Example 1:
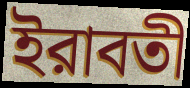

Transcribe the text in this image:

ইরাবতী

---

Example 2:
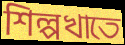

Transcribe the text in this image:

শিল্পখাতে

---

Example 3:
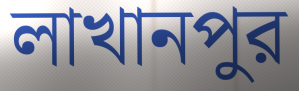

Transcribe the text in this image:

লাখানপুর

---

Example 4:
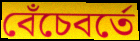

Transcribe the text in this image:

বেঁচেবর্তে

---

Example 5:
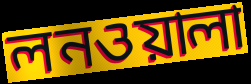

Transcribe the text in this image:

লনওয়ালা